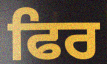
ਫਿਰ